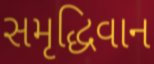
સમૃદ્ધિવાન